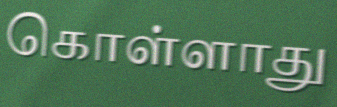
கொள்ளாது